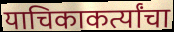
याचिकाकर्त्यांचा